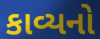
કાવ્યનો